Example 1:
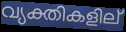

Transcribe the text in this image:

വ്യക്തികളില്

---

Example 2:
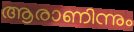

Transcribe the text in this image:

ആരാണിന്നും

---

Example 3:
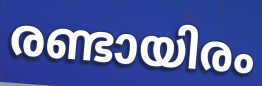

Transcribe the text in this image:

രണ്ടായിരം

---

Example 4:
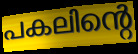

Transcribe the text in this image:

പകലിന്റെ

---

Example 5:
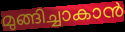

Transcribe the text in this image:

മുങ്ങിച്ചാകാൻ